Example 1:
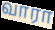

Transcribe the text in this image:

வாரா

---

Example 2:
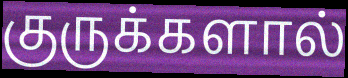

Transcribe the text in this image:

குருக்களால்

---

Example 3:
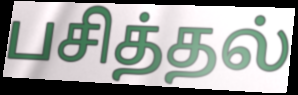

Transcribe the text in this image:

பசித்தல்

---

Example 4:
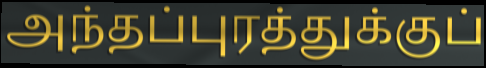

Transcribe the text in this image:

அந்தப்புரத்துக்குப்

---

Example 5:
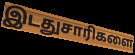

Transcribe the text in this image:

இடதுசாரிகளை